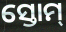
ସ୍ତୋମ୍